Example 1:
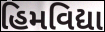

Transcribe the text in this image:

હિમવિદ્યા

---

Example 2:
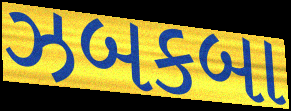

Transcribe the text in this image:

ઝબકબા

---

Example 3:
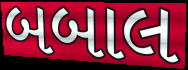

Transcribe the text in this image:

બબાલ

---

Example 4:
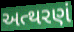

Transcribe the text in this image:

અત્થરણં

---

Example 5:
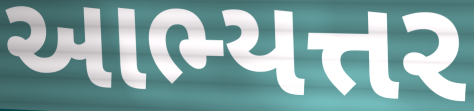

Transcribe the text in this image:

આભ્યત્તર